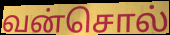
வன்சொல்